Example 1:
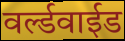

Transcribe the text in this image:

वर्ल्डवाईड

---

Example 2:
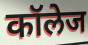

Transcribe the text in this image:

कॉलेज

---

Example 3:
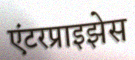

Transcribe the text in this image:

एंटरप्राइझेस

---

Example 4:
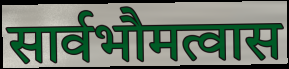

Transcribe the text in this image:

सार्वभौमत्वास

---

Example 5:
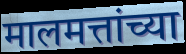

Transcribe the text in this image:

मालमत्तांच्या